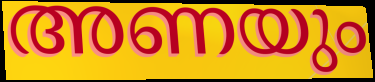
അണയും